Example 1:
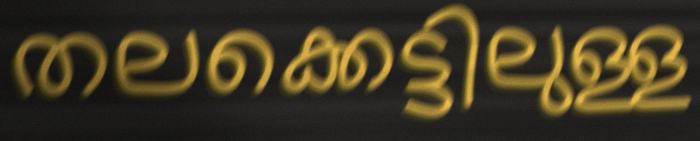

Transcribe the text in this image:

തലക്കെട്ടിലുള്ള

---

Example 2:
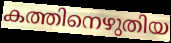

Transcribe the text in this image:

കത്തിനെഴുതിയ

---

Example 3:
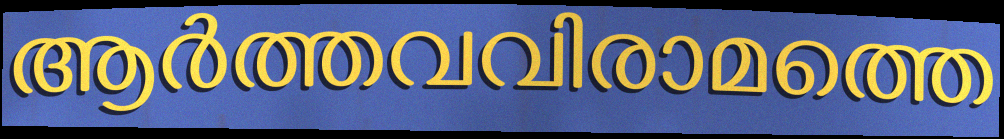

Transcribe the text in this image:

ആർത്തവവിരാമത്തെ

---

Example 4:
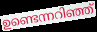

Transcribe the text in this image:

ഉണ്ടെന്നറിഞ്ഞ്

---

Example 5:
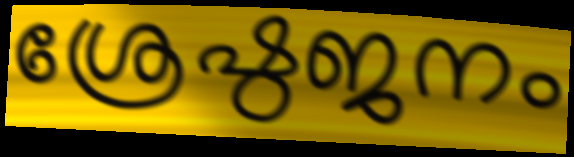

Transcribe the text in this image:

ശ്രേഷ്ഠജനം